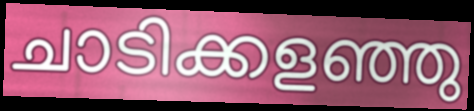
ചാടിക്കളഞ്ഞു